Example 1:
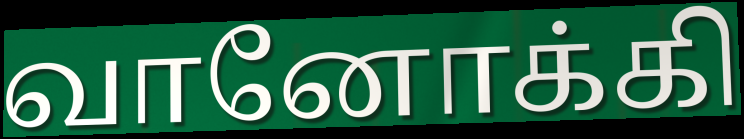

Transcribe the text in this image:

வானோக்கி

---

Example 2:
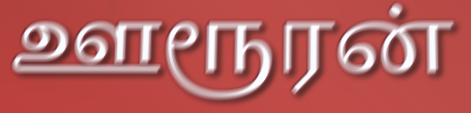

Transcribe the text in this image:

ஊரூரன்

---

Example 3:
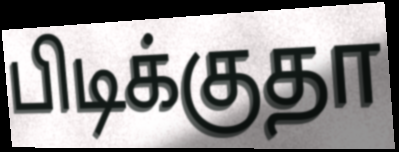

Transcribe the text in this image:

பிடிக்குதா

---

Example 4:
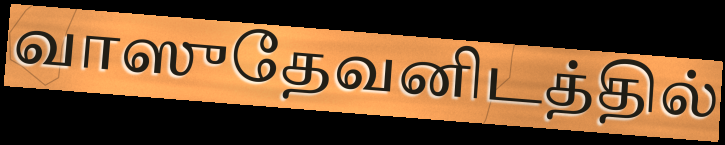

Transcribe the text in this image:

வாஸுதேவனிடத்தில்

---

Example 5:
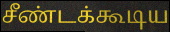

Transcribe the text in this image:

சீண்டக்கூடிய